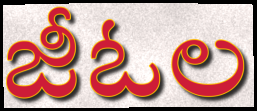
జీఓల